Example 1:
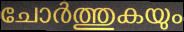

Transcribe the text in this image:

ചോർത്തുകയും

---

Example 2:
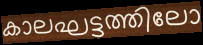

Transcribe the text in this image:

കാലഘട്ടത്തിലോ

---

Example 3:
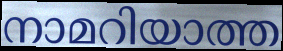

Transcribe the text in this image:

നാമറിയാത്ത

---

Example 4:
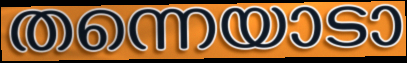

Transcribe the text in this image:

തന്നെയാടാ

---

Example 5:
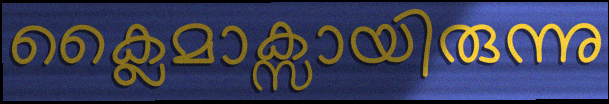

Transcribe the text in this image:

ക്ലൈമാക്സായിരുന്നു